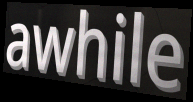
awhile